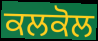
ਕਲਕੋਲ